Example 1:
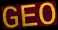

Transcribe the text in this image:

GEO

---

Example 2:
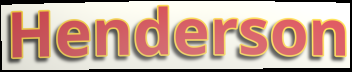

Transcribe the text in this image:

Henderson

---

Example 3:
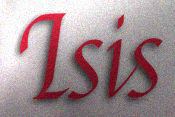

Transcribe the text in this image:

Isis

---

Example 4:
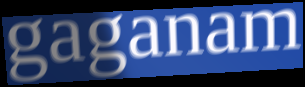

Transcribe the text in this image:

gaganam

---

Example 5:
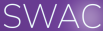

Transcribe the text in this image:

SWAC